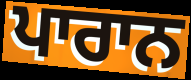
ਪਾਰਾਨ